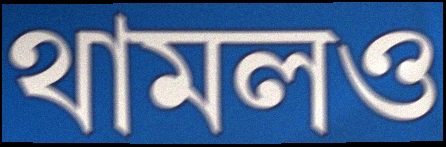
থামলও